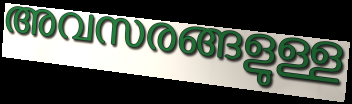
അവസരങ്ങളുള്ള